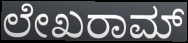
ಲೇಖರಾಮ್